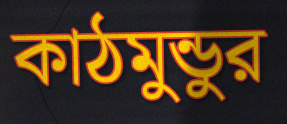
কাঠমুন্ডুর